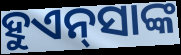
ହୁଏନ୍‍ସାଙ୍କ